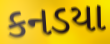
કનડયા